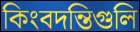
কিংবদন্তিগুলি